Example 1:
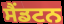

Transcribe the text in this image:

ਸੈਂਡਟਨ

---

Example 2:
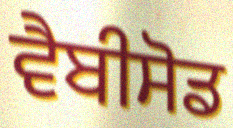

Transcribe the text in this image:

ਵੈਬੀਸੋਡ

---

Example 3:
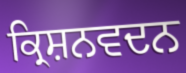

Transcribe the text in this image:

ਕ੍ਰਿਸ਼ਨਵਦਨ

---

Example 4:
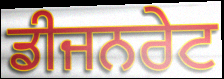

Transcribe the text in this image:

ਡੀਜਨਰੇਟ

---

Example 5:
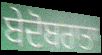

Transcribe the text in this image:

ਬੇਦੋਬਰਾਤਾ